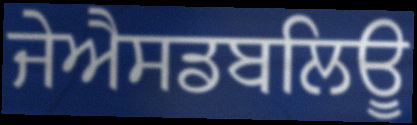
ਜੇਐਸਡਬਲਿਊ